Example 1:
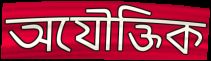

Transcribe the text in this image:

অযৌক্তিক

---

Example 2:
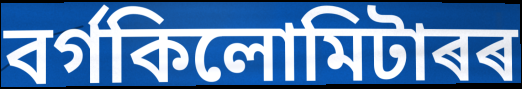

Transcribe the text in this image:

বৰ্গকিলোমিটাৰৰ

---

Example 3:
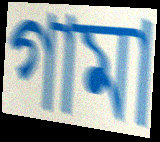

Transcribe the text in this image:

গামা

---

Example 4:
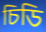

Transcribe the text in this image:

চিডি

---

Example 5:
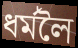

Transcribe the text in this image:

ধৰ্মলৈ